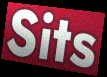
Sits